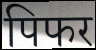
पिफर